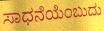
ಸಾಧನೆಯೆಂಬುದು